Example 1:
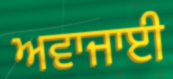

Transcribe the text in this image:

ਅਵਾਜਾਈ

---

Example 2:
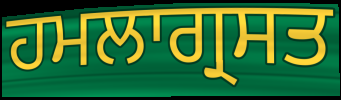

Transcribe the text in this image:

ਹਮਲਾਗ੍ਰਸਤ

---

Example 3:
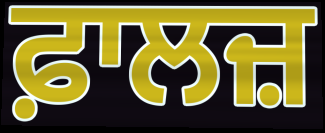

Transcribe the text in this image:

ਫ਼ਾਲਜ਼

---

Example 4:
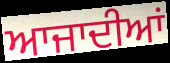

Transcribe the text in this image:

ਆਜਾਦੀਆਂ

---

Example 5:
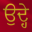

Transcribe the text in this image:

ਉਦ੍ਹੇ